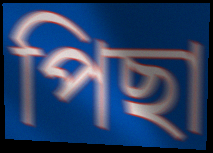
পিছা